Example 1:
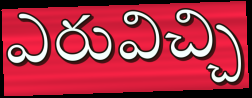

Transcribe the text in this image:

ఎరువిచ్చి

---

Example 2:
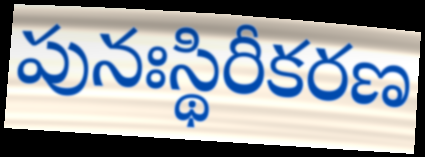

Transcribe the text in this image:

పునఃస్థిరీకరణ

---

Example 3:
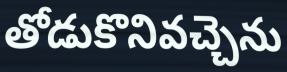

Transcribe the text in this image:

తోడుకొనివచ్చెను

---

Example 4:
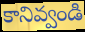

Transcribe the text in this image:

కానివ్వండి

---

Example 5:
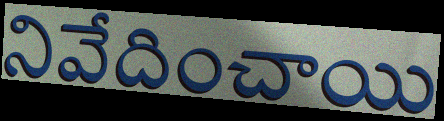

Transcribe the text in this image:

నివేదించాయి